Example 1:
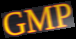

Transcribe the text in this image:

GMP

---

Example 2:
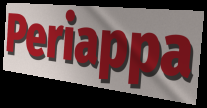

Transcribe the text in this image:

Periappa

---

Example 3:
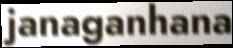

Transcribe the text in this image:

janaganhana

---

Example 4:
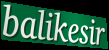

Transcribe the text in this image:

balikesir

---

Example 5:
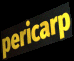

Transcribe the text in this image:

pericarp